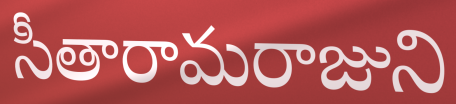
సీతారామరాజుని